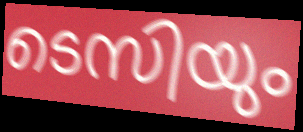
ടെസിയും